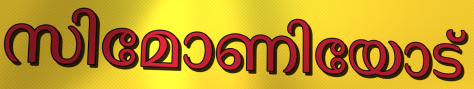
സിമോണിയോട്